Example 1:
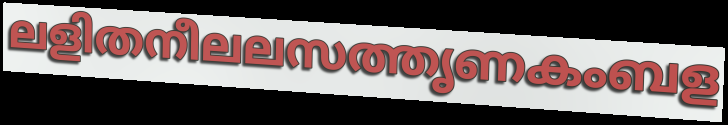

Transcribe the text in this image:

ലളിതനീലലസത്തൃണകംബള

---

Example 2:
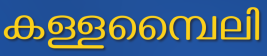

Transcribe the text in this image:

കള്ളമ്പൈലി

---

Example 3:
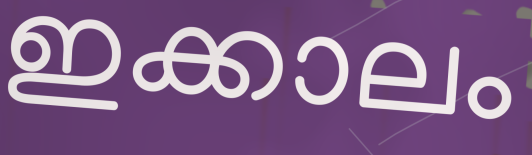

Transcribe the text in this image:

ഇക്കാലം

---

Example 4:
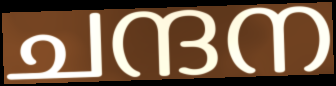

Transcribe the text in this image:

ചന്ദന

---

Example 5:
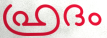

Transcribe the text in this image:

ഹ്രദം